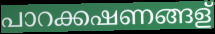
പാറക്കഷണങ്ങള്